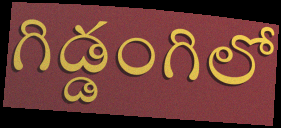
గిడ్డంగిలో